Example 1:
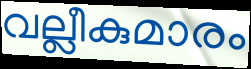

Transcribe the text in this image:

വല്ലീകുമാരം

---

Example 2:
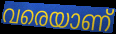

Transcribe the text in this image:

വരെയാണ്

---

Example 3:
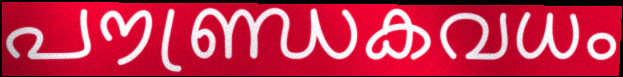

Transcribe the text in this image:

പൗണ്ഡ്രകവധം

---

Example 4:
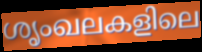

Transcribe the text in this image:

ശൃംഖലകളിലെ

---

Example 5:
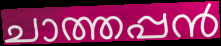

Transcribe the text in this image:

ചാത്തപ്പൻ